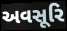
અવસૂરિ